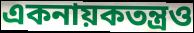
একনায়কতন্ত্রও